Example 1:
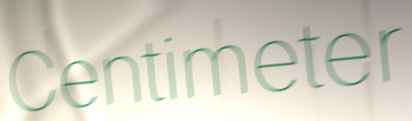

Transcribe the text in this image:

Centimeter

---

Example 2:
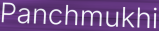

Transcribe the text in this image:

Panchmukhi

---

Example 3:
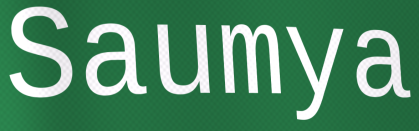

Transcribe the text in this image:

Saumya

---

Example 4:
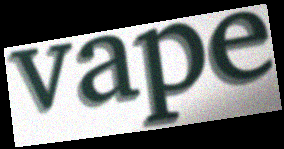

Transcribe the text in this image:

vape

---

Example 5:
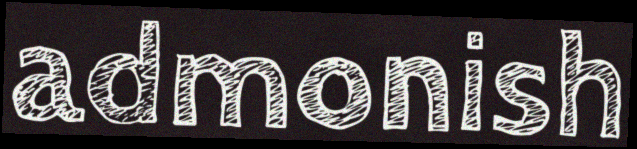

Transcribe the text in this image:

admonish